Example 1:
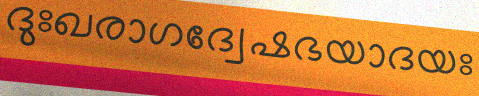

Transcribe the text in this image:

ദുഃഖരാഗദ്വേഷഭയാദയഃ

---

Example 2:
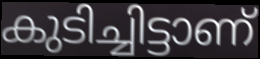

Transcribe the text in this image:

കുടിച്ചിട്ടാണ്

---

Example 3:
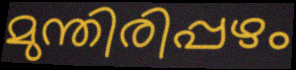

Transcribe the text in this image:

മുന്തിരിപ്പഴം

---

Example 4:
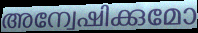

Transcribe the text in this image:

അന്വേഷിക്കുമോ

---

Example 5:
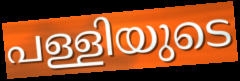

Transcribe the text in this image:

പള്ളിയുടെ